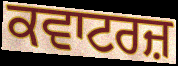
ਕਵਾਟਰਜ਼